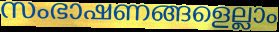
സംഭാഷണങ്ങളെല്ലാം